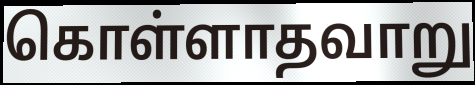
கொள்ளாதவாறு